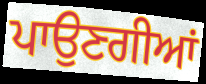
ਪਾਉਣਗੀਆਂ